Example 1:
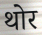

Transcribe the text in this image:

थोर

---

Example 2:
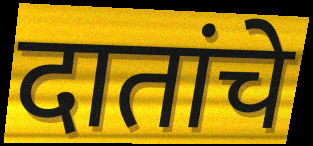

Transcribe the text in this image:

दातांचे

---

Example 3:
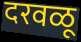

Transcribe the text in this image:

दरवळू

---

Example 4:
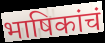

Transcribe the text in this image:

भाषिकांचं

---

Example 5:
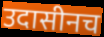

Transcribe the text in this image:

उदासीनच